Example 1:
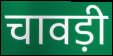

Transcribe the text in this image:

चावड़ी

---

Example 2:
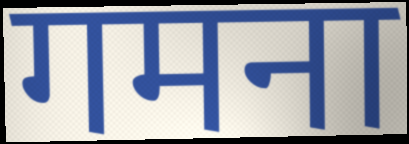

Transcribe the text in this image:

गमना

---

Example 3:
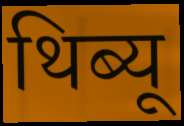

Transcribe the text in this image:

थिब्यू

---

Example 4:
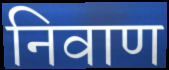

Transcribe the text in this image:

निवाण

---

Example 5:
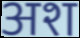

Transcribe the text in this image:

अश